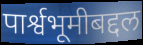
पार्श्वभूमीबद्दल